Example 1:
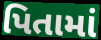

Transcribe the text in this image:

પિતામાં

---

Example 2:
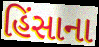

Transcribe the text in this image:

હિંસાના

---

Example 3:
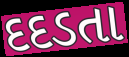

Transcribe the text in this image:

દદડતા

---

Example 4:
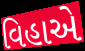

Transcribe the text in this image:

વિહાએ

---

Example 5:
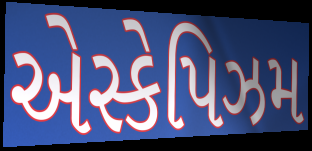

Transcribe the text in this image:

એસ્કેપિઝમ